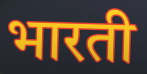
भारती